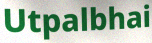
Utpalbhai